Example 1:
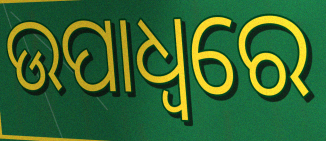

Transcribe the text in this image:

ଉପାଧ୍ଵରେ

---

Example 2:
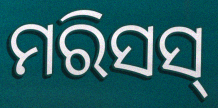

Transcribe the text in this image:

ମରିସସ୍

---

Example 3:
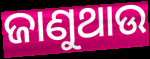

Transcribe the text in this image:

ଜାଣୁଥାଉ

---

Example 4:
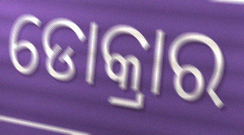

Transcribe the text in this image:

ଡୋକ୍ରାର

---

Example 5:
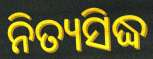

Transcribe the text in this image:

ନିତ୍ୟସିଦ୍ଧ